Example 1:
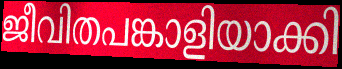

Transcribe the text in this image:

ജീവിതപങ്കാളിയാക്കി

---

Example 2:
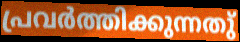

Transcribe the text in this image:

പ്രവർത്തിക്കുന്നതു്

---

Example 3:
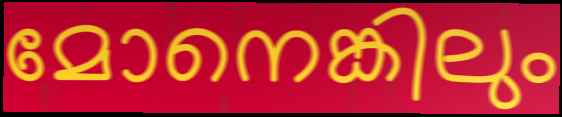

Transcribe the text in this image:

മോനെങ്കിലും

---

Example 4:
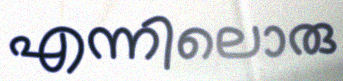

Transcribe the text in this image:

എന്നിലൊരു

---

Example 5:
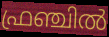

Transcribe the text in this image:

ഫ്രഞ്ചിൽ